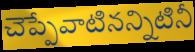
చెప్పేవాటినన్నిటినీ